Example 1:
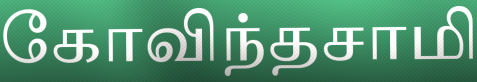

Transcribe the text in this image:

கோவிந்தசாமி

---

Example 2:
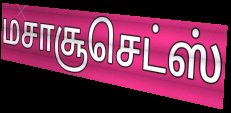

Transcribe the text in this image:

மசாசூசெட்ஸ்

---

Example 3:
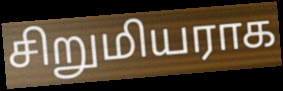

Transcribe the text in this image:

சிறுமியராக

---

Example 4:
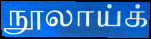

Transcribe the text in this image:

நூலாய்க்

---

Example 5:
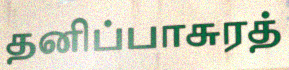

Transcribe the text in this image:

தனிப்பாசுரத்